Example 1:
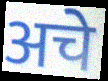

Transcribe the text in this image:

अचे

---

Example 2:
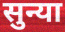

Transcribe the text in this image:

सुन्या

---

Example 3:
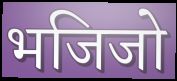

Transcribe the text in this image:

भजिजो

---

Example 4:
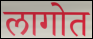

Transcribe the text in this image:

लागोत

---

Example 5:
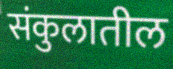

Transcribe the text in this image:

संकुलातील